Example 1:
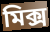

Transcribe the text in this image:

মিক্স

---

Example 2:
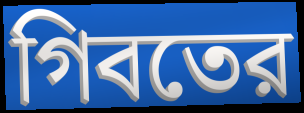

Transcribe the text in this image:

গিবতের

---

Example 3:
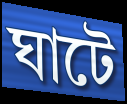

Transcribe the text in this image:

ঘাটে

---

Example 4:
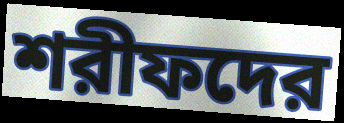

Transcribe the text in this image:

শরীফদের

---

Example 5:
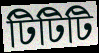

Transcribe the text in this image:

টিটিটি